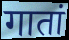
गातां